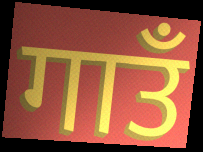
गाउँ